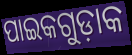
ପାଇକଗୁଡ଼ାକ